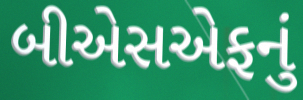
બીએસએફનું